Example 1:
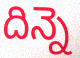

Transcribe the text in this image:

దిన్నె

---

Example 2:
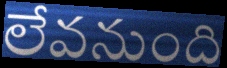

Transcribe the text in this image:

లేవనుంది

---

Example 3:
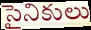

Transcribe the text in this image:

సైనికులు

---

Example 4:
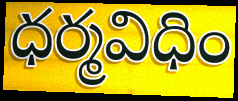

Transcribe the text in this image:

ధర్మవిధిం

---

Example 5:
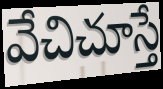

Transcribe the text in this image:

వేచిచూస్తే